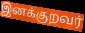
இனக்குறவர்